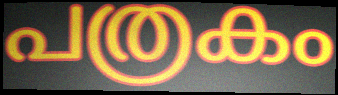
പത്രകം